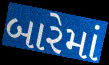
બારેમાં